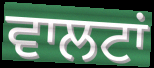
ਵਾਲਟਾਂ